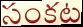
సంకట